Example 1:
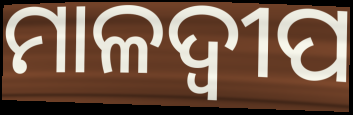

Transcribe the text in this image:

ମାଳଦ୍ବୀପ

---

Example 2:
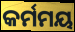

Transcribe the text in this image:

କର୍ମମୟ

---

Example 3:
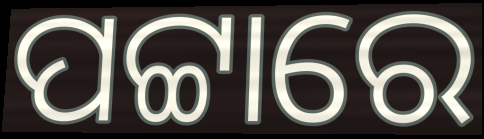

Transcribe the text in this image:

ପଟ୍ଟାରେ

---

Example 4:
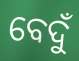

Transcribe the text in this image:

ବେଦୁଁ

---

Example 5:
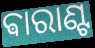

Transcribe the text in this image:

ଵାରାଣ୍ଟ